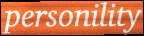
personility